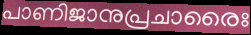
പാണിജാനുപ്രചാരൈഃ